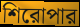
শিরোপার